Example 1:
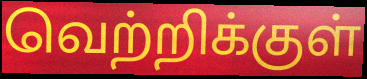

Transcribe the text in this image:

வெற்றிக்குள்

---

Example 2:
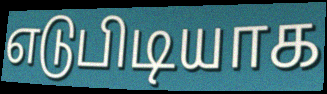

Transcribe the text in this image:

எடுபிடியாக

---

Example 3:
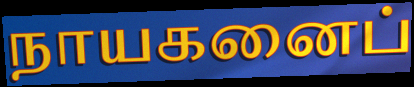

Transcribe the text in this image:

நாயகனைப்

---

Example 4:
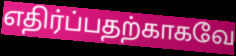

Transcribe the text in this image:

எதிர்ப்பதற்காகவே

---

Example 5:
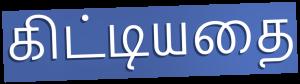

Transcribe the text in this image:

கிட்டியதை